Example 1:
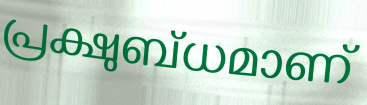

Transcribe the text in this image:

പ്രക്ഷുബ്ധമാണ്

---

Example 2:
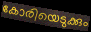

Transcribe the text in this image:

കോരിയെടുക്കും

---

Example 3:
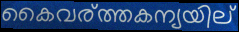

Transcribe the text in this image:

കൈവര്ത്തകന്യയില്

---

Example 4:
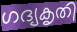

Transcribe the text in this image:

ഗദ്യകൃതി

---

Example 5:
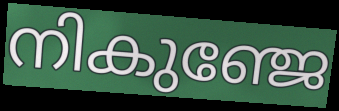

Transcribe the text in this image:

നികുഞ്ജേ